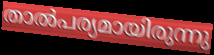
താൽപര്യമായിരുന്നു